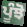
ਪੂੰਝੋ